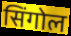
सिंगोल